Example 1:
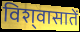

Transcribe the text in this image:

विश्वासातें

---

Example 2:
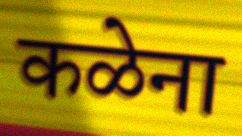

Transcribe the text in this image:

कळेना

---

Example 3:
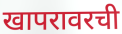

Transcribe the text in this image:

खापरावरची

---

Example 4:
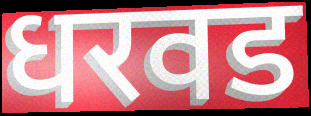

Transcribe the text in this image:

धरवड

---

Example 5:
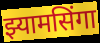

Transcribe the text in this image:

झ्यामसिंगा